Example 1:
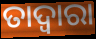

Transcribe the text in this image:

ତାଦ୍ଵାରା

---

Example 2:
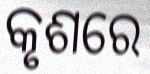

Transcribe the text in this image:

କୃଶରେ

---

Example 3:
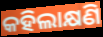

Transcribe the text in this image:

କହିଲାକ୍ଷଣି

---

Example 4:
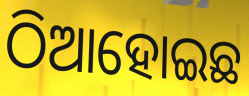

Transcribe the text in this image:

ଠିଆହୋଇଛ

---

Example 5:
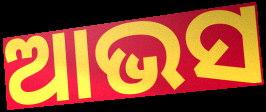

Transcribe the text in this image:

ଆଭସ